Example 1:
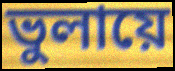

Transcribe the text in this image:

ভুলায়ে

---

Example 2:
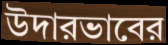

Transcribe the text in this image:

উদারভাবের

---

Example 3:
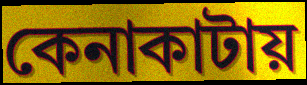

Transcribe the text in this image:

কেনাকাটায়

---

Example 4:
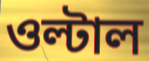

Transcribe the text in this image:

ওল্টাল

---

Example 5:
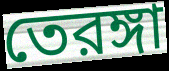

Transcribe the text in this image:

তেরঙ্গা